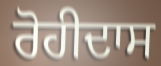
ਰੋਹੀਦਾਸ